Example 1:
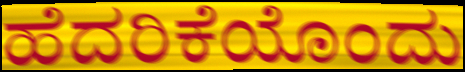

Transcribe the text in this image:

ಹೆದರಿಕೆಯೊಂದು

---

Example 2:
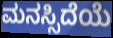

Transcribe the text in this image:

ಮನಸ್ಸಿದೆಯೆ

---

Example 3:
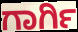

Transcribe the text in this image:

ಗಾರ್ಗಿ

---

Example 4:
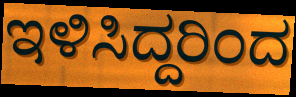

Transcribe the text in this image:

ಇಳಿಸಿದ್ದರಿಂದ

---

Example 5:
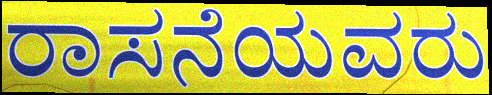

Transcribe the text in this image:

ರಾಸನೆಯವರು